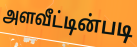
அளவீட்டின்படி